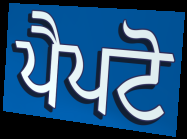
ਪੈਪਟੋ